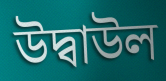
উদ্বাউল